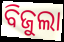
ବିଜୁଲା